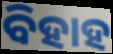
ବିହାହ